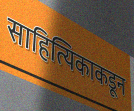
साहित्यिकाकडून